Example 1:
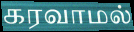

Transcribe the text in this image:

கரவாமல்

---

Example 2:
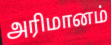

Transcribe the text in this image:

அரிமானம்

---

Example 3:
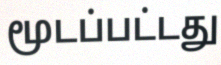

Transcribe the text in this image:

மூடப்பட்டது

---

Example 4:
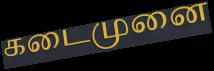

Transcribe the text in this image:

கடைமுனை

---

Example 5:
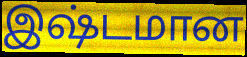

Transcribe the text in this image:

இஷ்டமான